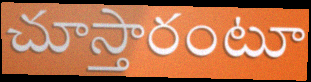
చూస్తారంటూ